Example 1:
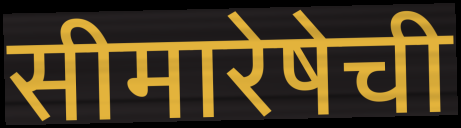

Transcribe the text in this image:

सीमारेषेची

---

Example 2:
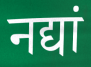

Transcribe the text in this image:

नद्यां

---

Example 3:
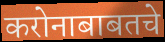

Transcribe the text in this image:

करोनाबाबतचे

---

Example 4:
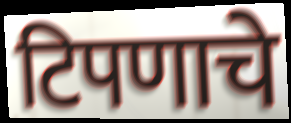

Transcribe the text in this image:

टिपणाचे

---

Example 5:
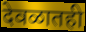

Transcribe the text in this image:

देवळातही